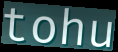
tohu